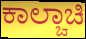
ಕಾಲ್ಚಾಚಿ